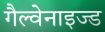
गैल्वेनाइज्ड